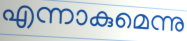
എന്നാകുമെന്നു